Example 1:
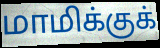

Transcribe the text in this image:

மாமிக்குக்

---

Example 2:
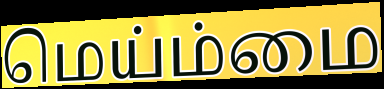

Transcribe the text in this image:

மெய்ம்மை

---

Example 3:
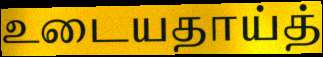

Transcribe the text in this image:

உடையதாய்த்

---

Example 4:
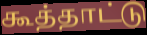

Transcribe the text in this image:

கூத்தாட்டு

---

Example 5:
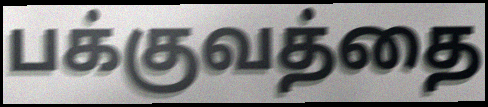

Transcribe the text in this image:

பக்குவத்தை